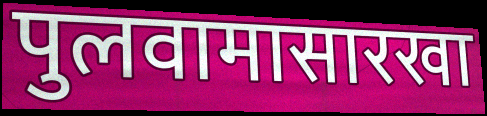
पुलवामासारखा